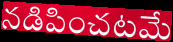
నడిపించటమే